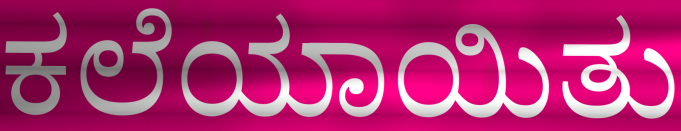
ಕಲೆಯಾಯಿತು